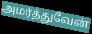
அமர்த்துவேன்